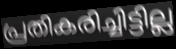
പ്രതികരിച്ചിട്ടില്ല